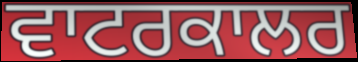
ਵਾਟਰਕਾਲਰ